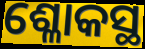
ଶ୍ଳୋକସ୍ଥ